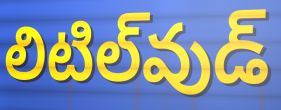
లిటిల్‌వుడ్